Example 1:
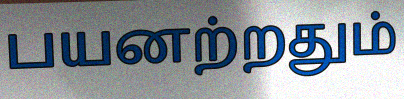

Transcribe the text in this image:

பயனற்றதும்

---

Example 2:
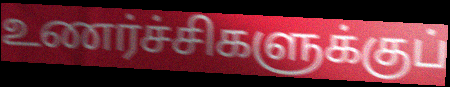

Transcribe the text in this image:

உணர்ச்சிகளுக்குப்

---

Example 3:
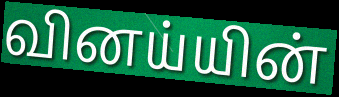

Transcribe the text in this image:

வினய்யின்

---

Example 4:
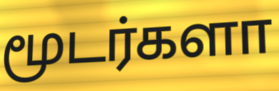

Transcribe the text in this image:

மூடர்களா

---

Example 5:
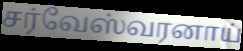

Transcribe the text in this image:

சர்வேஸ்வரனாய்